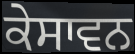
ਕੇਸਾਵਨ